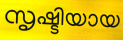
സൃഷ്ടിയായ